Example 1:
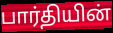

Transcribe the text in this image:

பார்தியின்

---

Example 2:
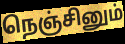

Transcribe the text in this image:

நெஞ்சினும்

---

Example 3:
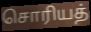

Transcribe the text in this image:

சொரியத்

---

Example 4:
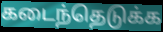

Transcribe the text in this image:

கடைந்தெடுக்க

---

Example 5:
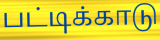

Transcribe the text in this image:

பட்டிக்காடு